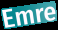
Emre